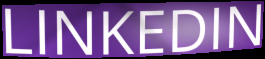
LINKEDIN